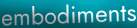
embodiments